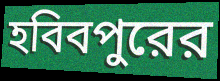
হবিবপুরের